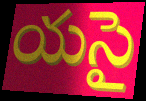
యసై